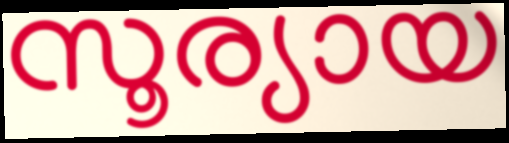
സൂര്യായ